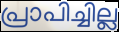
പ്രാപിച്ചില്ല